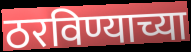
ठरविण्याच्या